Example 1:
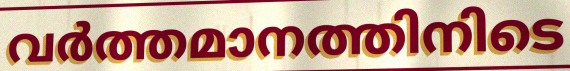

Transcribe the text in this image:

വർത്തമാനത്തിനിടെ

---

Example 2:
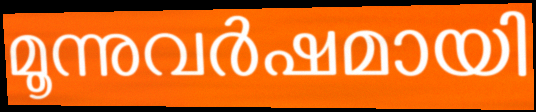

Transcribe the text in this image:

മൂന്നുവർഷമായി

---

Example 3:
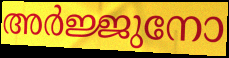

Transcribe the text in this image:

അർജ്ജുനോ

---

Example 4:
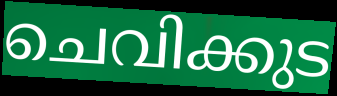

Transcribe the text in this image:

ചെവിക്കുട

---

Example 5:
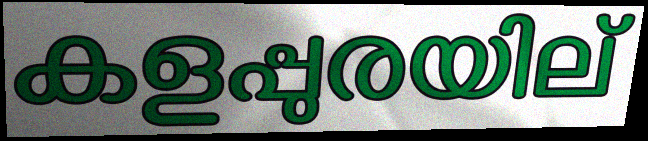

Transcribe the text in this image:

കളപ്പുരയില്